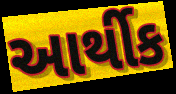
આર્થીક